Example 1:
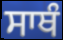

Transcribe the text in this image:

ਸਾਥੰ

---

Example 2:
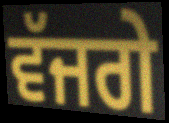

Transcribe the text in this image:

ਵੱਜਗੇ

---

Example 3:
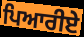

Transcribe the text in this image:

ਪਿਆਰੀਏ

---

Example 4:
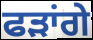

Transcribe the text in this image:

ਫੜਾਂਗੇ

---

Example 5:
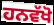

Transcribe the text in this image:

ਹਨਵੱਖੋ